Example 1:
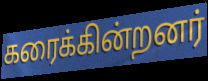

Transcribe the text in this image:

கரைக்கின்றனர்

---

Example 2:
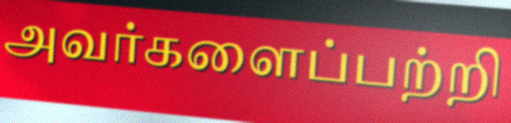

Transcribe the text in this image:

அவர்களைப்பற்றி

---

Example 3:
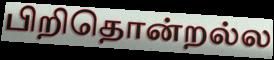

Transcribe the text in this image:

பிறிதொன்றல்ல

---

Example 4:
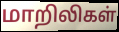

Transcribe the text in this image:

மாறிலிகள்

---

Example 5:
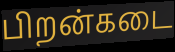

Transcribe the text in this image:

பிறன்கடை